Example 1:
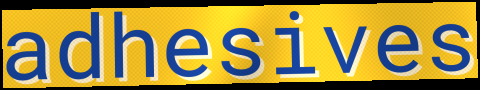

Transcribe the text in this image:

adhesives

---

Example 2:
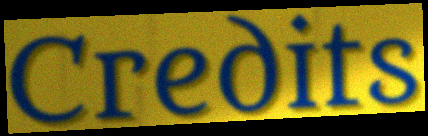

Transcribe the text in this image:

Credits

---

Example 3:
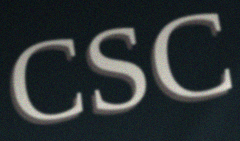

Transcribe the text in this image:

CSC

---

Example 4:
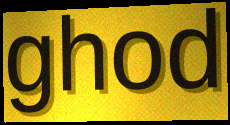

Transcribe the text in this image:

ghod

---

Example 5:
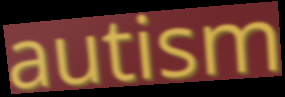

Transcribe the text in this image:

autism